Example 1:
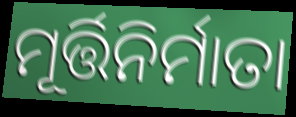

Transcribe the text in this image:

ମୂର୍ତ୍ତିନିର୍ମାତା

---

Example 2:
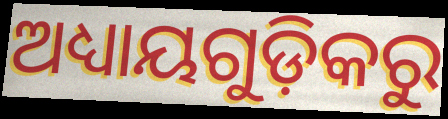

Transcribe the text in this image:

ଅଧ୍ୟାୟଗୁଡ଼ିକରୁ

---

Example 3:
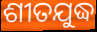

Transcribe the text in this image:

ଶୀତଯୁଦ୍ଧ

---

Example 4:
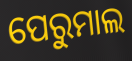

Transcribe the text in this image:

ପେରୁମାଲ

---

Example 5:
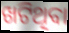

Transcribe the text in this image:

ଖଟିଥିବା